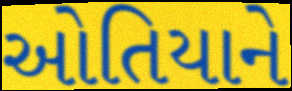
ઓતિયાને